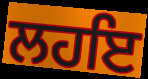
ਲਹਇ